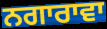
ਨਗਾਰਾਵਾ